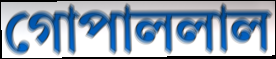
গোপাললাল